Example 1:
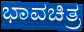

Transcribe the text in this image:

ಭಾವಚಿತ್ರ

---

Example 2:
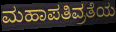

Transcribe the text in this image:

ಮಹಾಪತಿವ್ರತೆಯ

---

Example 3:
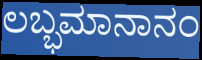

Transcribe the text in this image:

ಲಬ್ಭಮಾನಾನಂ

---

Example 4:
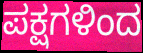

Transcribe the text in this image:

ಪಕ್ಷಗಳಿಂದ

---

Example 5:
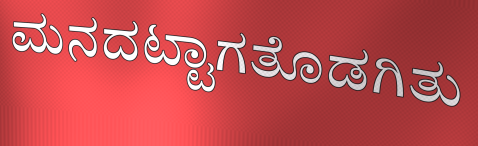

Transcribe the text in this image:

ಮನದಟ್ಟಾಗತೊಡಗಿತು